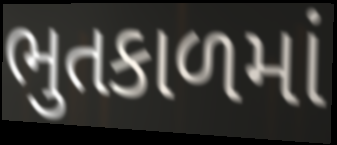
ભુતકાળમાં